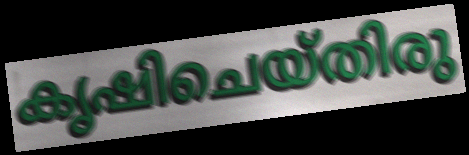
കൃഷിചെയ്തിരു